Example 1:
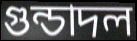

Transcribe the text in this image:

গুন্ডাদল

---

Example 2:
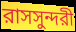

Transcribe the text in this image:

রাসসুন্দরী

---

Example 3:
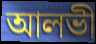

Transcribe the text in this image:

আলভী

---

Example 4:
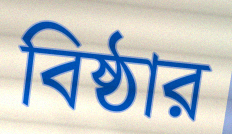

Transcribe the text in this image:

বিষ্ঠার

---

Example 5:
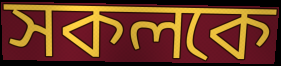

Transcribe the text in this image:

সকলকে